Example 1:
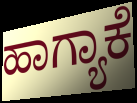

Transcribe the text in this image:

ಹಾಗ್ಯಾಕೆ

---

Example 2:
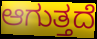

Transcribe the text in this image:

ಆಗುತ್ತದೆ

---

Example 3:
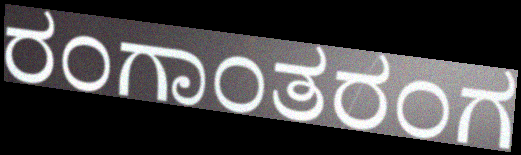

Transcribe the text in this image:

ರಂಗಾಂತರಂಗ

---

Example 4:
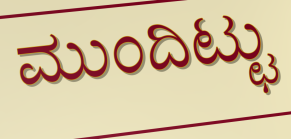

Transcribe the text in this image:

ಮುಂದಿಟ್ಟು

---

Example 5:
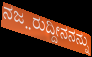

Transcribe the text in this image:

ನಜ಼ರುದ್ದೀನನನ್ನು